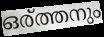
ഒര്ത്തനും